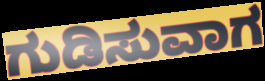
ಗುಡಿಸುವಾಗ